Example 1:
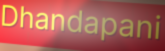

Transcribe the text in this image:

Dhandapani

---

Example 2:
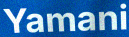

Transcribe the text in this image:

Yamani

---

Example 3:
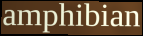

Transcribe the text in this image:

amphibian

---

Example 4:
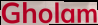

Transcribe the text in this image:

Gholam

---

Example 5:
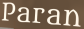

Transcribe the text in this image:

Paran